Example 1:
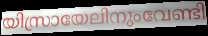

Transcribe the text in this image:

യിസ്രായേലിനുംവേണ്ടി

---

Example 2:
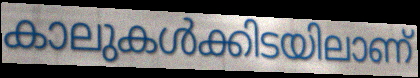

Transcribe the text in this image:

കാലുകൾക്കിടയിലാണ്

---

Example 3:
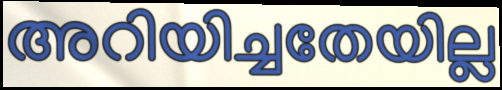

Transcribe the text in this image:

അറിയിച്ചതേയില്ല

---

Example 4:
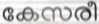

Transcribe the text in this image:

കേസരീ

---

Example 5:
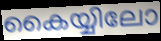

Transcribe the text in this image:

കൈയ്യിലോ